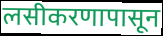
लसीकरणापासून